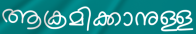
ആക്രമിക്കാനുള്ള